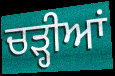
ਚੜ੍ਹੀਆਂ